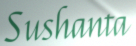
Sushanta